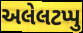
અલેલટપ્પુ